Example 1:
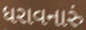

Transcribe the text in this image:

ધરાવનારું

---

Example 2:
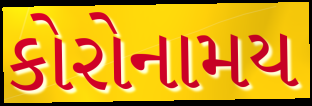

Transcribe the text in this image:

કોરોનામય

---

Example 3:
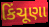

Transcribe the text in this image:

કિંચૂણા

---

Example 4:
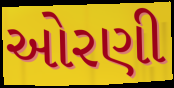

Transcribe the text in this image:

ઓરણી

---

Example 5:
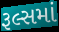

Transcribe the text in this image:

રૂલ્સમાં